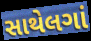
સાથેલગાં